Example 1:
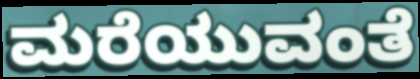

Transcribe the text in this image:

ಮರೆಯುವಂತೆ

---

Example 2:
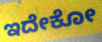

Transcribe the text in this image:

ಇದೇಕೋ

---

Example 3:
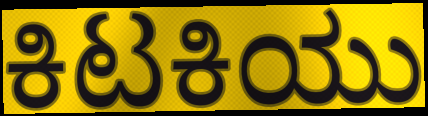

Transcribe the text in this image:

ಕಿಟಕಿಯು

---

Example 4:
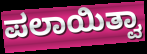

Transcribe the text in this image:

ಪಲಾಯಿತ್ವಾ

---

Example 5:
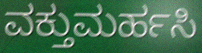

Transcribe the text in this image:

ವಕ್ತುಮರ್ಹಸಿ